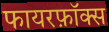
फायरफ़ॉक्स